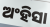
ଅଂହିସା